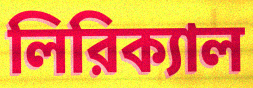
লিরিক্যাল